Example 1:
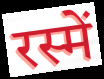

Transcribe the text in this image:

रस्‍में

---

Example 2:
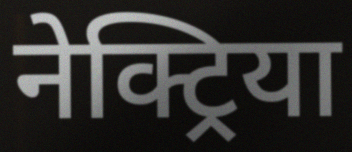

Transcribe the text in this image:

नेक्ट्रिया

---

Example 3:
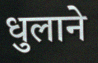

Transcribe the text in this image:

धुलाने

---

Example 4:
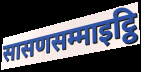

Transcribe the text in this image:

सासणसम्माइट्ठि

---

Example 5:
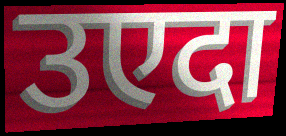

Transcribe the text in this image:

उएदा